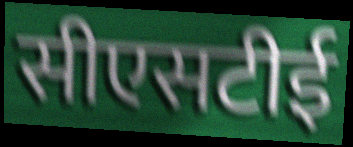
सीएसटीई